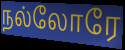
நல்லோரே